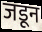
जडून